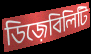
ডিজ়েবিলিটি